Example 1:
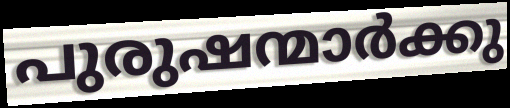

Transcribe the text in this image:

പുരുഷന്മാർക്കു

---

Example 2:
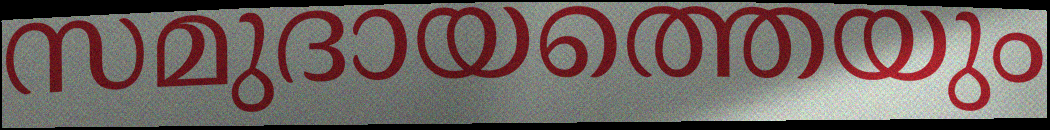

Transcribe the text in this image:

സമുദായത്തെയും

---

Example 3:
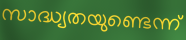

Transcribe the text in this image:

സാദ്ധ്യതയുണ്ടെന്ന്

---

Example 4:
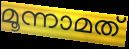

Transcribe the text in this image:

മൂന്നാമത്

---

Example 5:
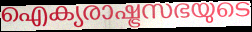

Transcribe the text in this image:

ഐക്യരാഷ്ട്രസഭയുടെ